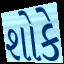
શોકે